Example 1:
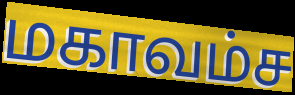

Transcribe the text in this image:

மகாவம்ச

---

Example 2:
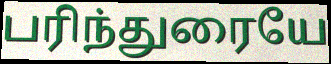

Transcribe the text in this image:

பரிந்துரையே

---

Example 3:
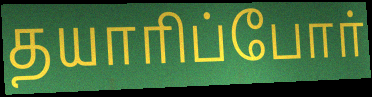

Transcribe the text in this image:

தயாரிப்போர்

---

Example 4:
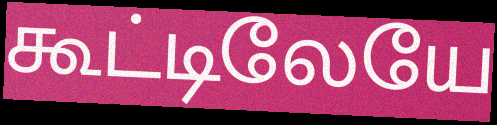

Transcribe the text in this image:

கூட்டிலேயே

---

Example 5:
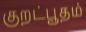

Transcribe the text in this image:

குறட்பூதம்